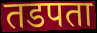
तडपता